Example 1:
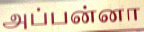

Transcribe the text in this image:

அப்பன்னா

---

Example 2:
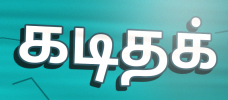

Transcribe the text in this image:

கடிதக்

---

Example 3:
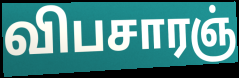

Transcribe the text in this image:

விபசாரஞ்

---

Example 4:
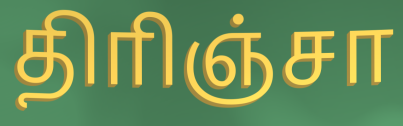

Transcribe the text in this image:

திரிஞ்சா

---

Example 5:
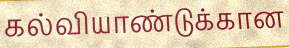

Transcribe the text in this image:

கல்வியாண்டுக்கான